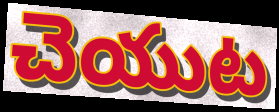
చెయుట